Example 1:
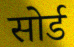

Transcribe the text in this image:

सोर्ड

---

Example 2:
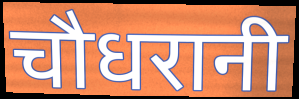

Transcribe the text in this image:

चौधरानी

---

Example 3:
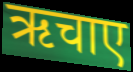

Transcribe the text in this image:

ऋचाए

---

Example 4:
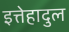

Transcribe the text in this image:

इत्तेहादुल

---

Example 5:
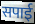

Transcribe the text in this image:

सपाई